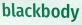
blackbody